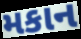
મકાન